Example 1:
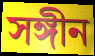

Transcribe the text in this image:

সঙ্গীন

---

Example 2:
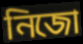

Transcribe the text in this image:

নিজো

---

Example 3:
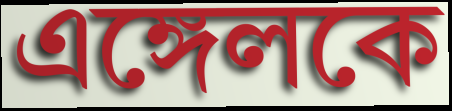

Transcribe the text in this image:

এঙ্গেলকে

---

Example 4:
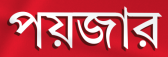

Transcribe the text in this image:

পয়জার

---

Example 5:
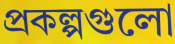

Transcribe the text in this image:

প্রকল্পগুলো